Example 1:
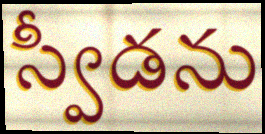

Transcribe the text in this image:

స్వీడను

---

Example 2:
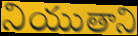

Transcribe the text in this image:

నియుతాని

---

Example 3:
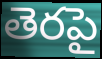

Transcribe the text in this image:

తెరపై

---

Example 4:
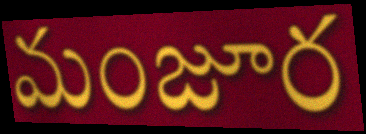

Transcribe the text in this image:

మంజూర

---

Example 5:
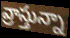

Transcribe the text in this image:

వ్రాస్తున్నా